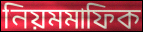
নিয়মমাফিক